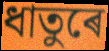
ধাতুৰে